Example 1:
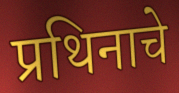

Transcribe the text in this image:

प्रथिनाचे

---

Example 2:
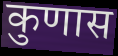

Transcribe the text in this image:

कुणास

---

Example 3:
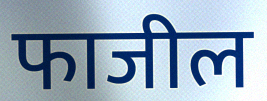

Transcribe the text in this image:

फाजील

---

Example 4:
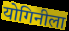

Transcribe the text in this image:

योगिनीला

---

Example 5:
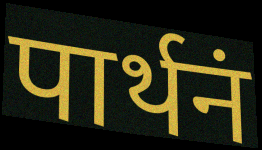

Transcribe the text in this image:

पार्थनं